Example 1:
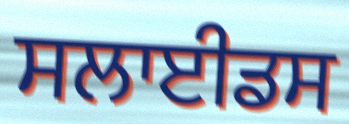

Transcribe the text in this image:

ਸਲਾਈਡਸ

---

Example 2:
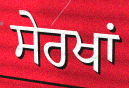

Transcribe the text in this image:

ਸੇਰਖਾਂ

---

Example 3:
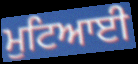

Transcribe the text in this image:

ਮੁਟਿਆਈ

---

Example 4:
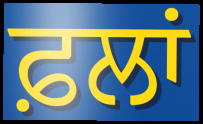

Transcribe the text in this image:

ਫ਼ਲਾਂ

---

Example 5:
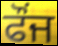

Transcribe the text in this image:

ਫੌਂਜ